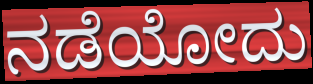
ನಡೆಯೋದು